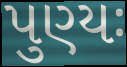
પુણ્યઃ